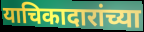
याचिकादारांच्या